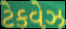
ટેકવેઝ